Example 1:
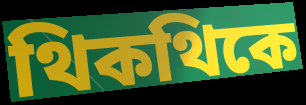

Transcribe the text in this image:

থিকথিকে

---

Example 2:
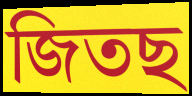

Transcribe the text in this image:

জিতছ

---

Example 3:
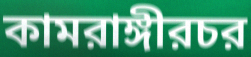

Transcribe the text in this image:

কামরাঙ্গীরচর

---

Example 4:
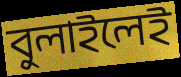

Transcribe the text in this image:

বুলাইলেই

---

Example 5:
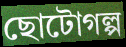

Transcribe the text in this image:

ছোটোগল্প